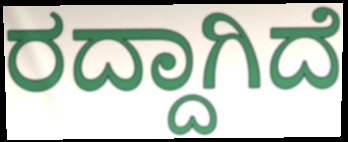
ರದ್ದಾಗಿದೆ